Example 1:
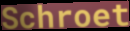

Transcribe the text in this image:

Schroet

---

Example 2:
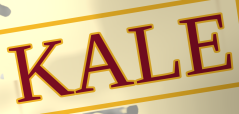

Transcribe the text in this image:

KALE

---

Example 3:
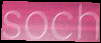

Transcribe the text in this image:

soch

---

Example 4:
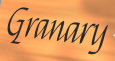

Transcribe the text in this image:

Granary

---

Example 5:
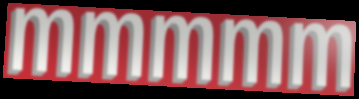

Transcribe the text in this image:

mmmmm